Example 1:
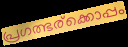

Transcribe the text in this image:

പ്രഗത്ഭര്ക്കൊപ്പം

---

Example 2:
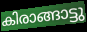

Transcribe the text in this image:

കിരാങ്ങാട്ടു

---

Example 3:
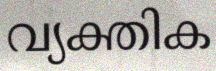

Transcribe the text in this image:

വ്യക്തിക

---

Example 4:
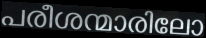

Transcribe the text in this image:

പരീശന്മാരിലോ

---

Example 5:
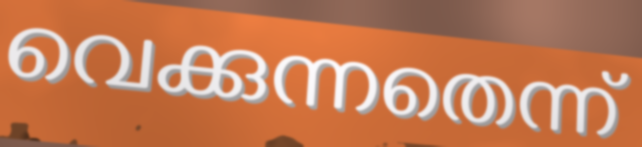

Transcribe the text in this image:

വെക്കുന്നതെന്ന്